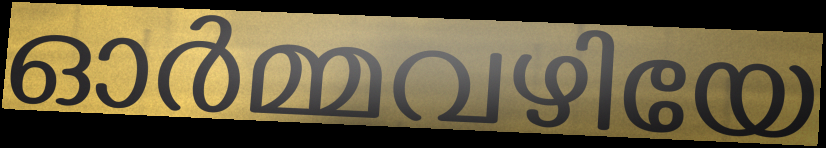
ഓർമ്മവഴിയേ